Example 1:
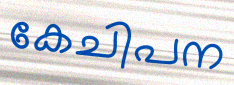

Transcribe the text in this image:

കേചിപന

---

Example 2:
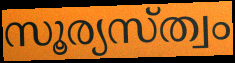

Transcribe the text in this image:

സൂര്യസ്ത്വം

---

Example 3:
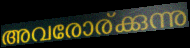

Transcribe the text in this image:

അവരോര്ക്കുന്നു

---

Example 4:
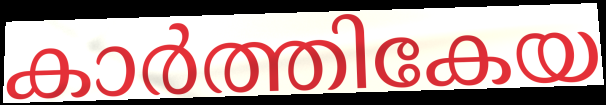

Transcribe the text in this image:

കാർത്തികേയ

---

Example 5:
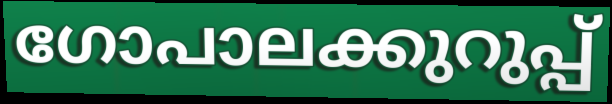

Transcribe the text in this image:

ഗോപാലക്കുറുപ്പ്